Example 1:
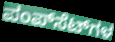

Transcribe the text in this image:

ಪಂಪ್‌ಸೆಟ್‌ಗಳ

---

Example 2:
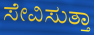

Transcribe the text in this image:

ಸೇವಿಸುತ್ತಾ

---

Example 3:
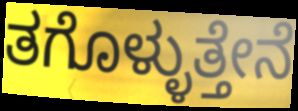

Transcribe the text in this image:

ತಗೊಳ್ಳುತ್ತೇನೆ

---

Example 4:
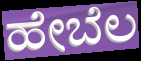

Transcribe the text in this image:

ಹೇಬೆಲ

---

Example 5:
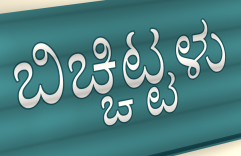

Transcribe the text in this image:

ಬಿಚ್ಚಿಟ್ಟಳು